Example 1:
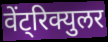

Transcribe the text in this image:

वेंट्रिक्युलर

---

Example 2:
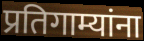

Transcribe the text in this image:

प्रतिगाम्यांना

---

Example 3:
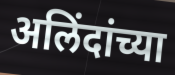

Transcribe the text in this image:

अलिंदांच्या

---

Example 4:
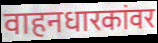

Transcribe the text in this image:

वाहनधारकांवर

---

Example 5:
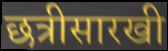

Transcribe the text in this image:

छत्रीसारखी